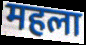
महला